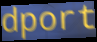
dport